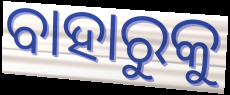
ବାହାରୁକୁ